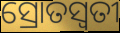
ସ୍ରୋତସ୍ଵତୀ